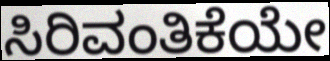
ಸಿರಿವಂತಿಕೆಯೇ